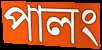
পালং